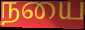
நயை